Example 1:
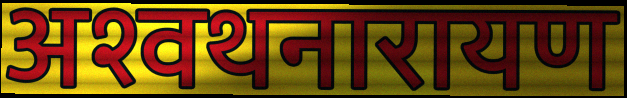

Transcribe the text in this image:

अश्वथनारायण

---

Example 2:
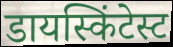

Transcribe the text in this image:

डायस्किंटेस्ट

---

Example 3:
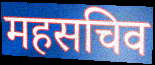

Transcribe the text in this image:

महसचिव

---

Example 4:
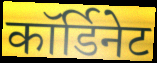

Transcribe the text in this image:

कॉर्डिनेट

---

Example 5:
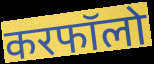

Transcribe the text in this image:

करफॉलो